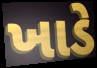
ખાડે